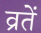
व्रतें